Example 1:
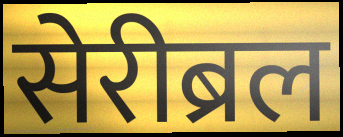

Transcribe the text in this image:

सेरीब्रल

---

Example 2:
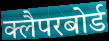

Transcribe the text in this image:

क्लैपरबोर्ड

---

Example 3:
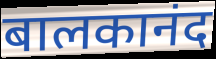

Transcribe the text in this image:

बालकानंद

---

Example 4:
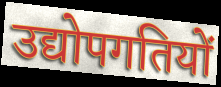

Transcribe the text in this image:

उद्योपगतियों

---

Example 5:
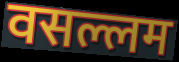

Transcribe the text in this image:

वसल्लम